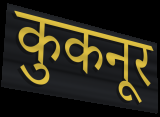
कुकनूर